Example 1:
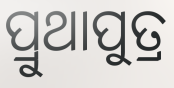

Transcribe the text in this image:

ପ୍ରୁଥାପୁତ୍ର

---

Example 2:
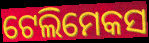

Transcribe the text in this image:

ଟେଲିମେକସ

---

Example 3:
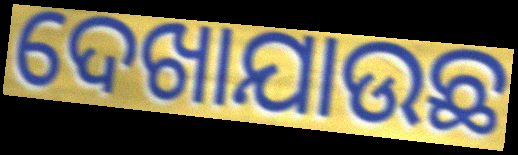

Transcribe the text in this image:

ଦେଖାଯାଉଛ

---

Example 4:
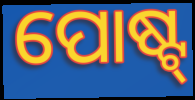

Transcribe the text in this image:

ପୋଷ୍ଟ୍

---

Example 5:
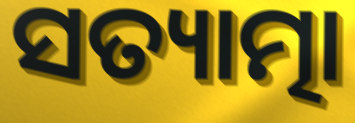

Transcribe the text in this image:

ସତ୍ୟାତ୍ମା